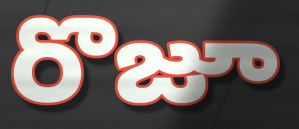
రొజూ